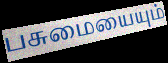
பசுமையையும்